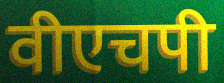
वीएचपी